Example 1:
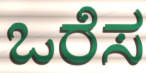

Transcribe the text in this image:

ಒರೆಸ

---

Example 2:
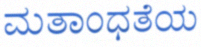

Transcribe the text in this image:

ಮತಾಂಧತೆಯ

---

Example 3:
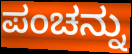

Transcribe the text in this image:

ಪಂಚನ್ನು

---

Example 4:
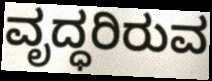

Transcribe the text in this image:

ವೃದ್ಧರಿರುವ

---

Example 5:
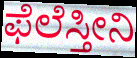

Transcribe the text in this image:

ಫೆಲೆಸ್ತೀನಿ